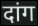
दांग